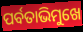
ପର୍ବତାଭିମୁଖେ